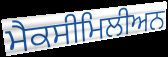
ਮੈਕਸੀਮਿਲੀਅਨ